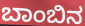
ಬಾಂಬಿನ